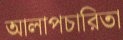
আলাপচারিতা